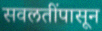
सवलतींपासून